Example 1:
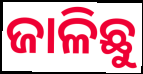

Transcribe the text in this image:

ଜାଳିଛୁ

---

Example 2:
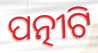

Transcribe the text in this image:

ପତ୍ନୀଟି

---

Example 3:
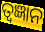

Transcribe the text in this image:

ତ୍ୱଜ୍ଞାନ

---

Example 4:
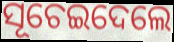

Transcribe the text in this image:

ସୂଚେଇଦେଲେ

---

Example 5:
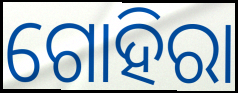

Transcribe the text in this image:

ଗୋହିରା